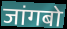
जांगबो